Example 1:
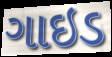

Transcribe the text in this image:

ગાઇડ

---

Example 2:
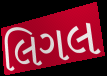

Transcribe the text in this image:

લિગલ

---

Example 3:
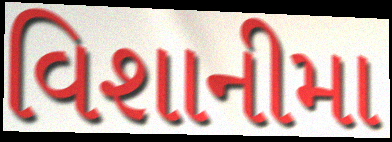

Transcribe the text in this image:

વિશાનીમા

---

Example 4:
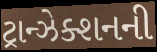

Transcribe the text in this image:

ટ્રાન્ઝેક્શનની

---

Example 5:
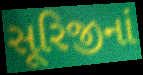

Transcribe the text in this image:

સૂરિજીનાં